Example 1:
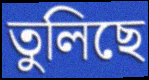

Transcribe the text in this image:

তুলিছে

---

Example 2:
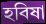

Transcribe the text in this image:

হবিষা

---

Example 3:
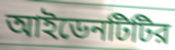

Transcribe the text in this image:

আইডেনটিটির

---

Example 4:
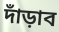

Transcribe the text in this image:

দাঁড়াব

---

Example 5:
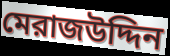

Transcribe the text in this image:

মেরাজউদ্দিন